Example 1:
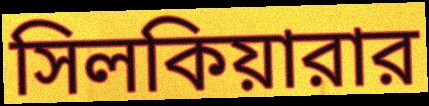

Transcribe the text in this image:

সিলকিয়ারার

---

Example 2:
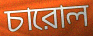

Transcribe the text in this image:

চারোল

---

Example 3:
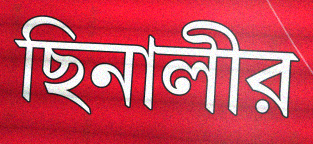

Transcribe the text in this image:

ছিনালীর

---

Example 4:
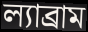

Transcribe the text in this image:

ল্যাব্রাম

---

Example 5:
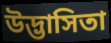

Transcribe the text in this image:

উদ্ভাসিতা